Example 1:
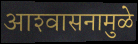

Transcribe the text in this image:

आश्वासनामुळे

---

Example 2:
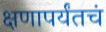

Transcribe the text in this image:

क्षणापर्यंतचं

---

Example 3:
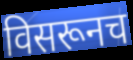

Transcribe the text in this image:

विसरूनच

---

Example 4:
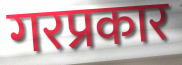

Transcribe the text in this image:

गरप्रकार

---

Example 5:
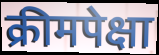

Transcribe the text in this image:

क्रीमपेक्षा